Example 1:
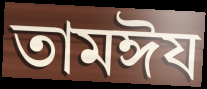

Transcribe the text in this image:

তামঈয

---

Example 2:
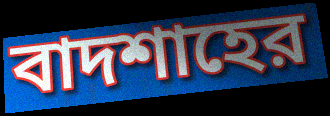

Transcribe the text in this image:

বাদশাহের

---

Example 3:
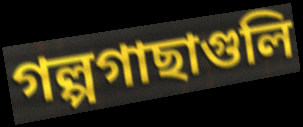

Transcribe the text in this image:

গল্পগাছাগুলি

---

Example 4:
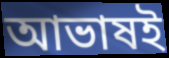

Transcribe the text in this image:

আভাষই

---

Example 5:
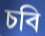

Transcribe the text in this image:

চবি